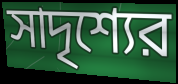
সাদৃশ্যের